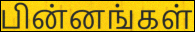
பின்னங்கள்